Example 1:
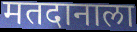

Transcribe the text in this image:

मतदानाला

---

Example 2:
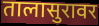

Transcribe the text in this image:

तालासुरावर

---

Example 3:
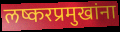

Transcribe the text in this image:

लष्करप्रमुखांना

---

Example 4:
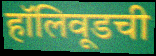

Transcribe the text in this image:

हॉलिवूडची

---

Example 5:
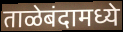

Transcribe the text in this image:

ताळेबंदामध्ये